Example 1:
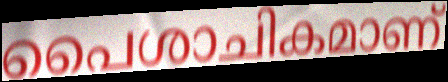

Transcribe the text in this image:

പൈശാചികമാണ്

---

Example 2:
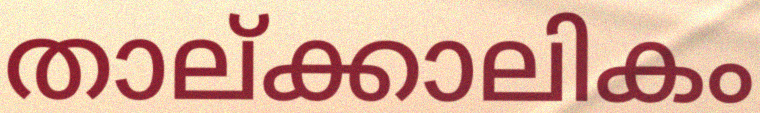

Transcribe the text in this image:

താല്ക്കാലികം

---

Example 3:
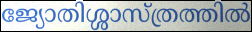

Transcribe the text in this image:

ജ്യോതിശ്ശാസ്ത്രത്തിൽ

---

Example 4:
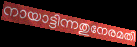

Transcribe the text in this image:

നായാട്ടിന്നതുനേരമതി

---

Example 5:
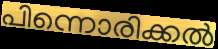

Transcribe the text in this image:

പിന്നൊരിക്കൽ